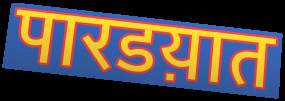
पारडय़ात